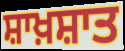
ਸ਼ਾਖ਼ਸ਼ਾਤ